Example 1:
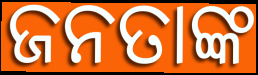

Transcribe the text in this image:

ଜନତାଙ୍କ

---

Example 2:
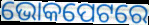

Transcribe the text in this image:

ଭୋକପେଟରେ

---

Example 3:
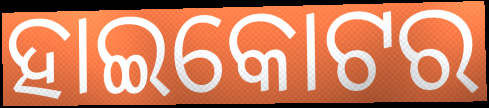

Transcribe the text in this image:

ହାଇକୋଟର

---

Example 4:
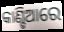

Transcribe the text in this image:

କାଣ୍ଡିଆରେ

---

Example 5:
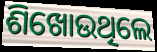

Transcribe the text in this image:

ଶିଖୋଉଥିଲେ